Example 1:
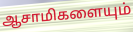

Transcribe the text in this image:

ஆசாமிகளையும்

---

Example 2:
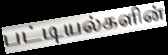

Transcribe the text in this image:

பட்டியல்களின்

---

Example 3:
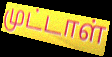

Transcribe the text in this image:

முட்டாள்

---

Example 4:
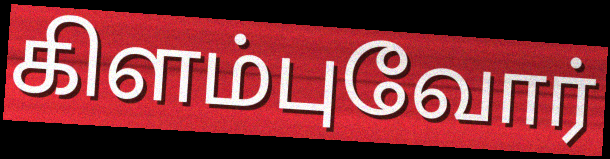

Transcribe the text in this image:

கிளம்புவோர்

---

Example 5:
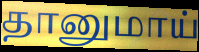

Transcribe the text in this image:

தானுமாய்